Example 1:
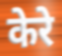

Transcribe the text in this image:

केरे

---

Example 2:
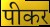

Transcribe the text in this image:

पीकर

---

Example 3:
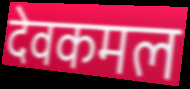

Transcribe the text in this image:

देवकमल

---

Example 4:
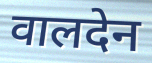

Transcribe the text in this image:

वालदेन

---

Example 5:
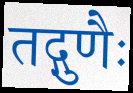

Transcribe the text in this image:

तद्गुणैः